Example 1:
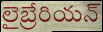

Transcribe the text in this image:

లైబ్రేరియన్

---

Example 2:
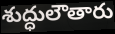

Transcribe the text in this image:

శుద్ధులౌతారు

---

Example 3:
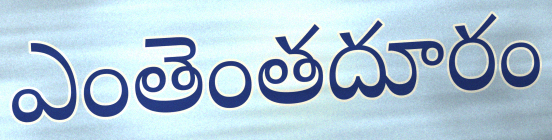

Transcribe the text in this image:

ఎంతెంతదూరం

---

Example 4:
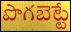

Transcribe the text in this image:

పొగబెట్టే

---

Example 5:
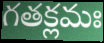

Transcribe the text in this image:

గతక్లమః